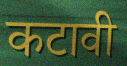
कटावी